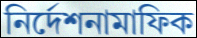
নির্দেশনামাফিক